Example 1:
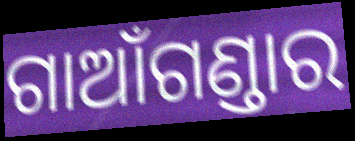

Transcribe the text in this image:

ଗାଆଁଗଣ୍ଡାର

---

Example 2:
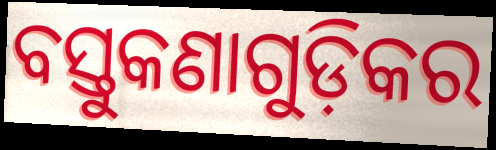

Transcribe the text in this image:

ବସ୍ତୁକଣାଗୁଡ଼ିକର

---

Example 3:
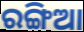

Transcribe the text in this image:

ରଙ୍ଗିଆ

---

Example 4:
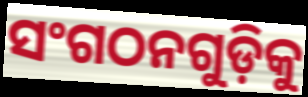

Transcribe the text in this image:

ସଂଗଠନଗୁଡ଼ିକୁ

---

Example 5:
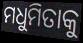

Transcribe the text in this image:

ମଧୁମିତାକୁ